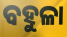
ବହୁଳା